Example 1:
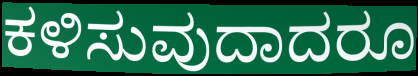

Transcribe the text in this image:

ಕಳಿಸುವುದಾದರೂ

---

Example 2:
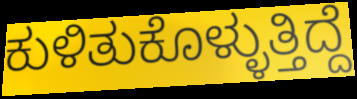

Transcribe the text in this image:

ಕುಳಿತುಕೊಳ್ಳುತ್ತಿದ್ದೆ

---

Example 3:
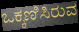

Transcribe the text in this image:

ಒಕ್ಕಣಿಸಿರುವ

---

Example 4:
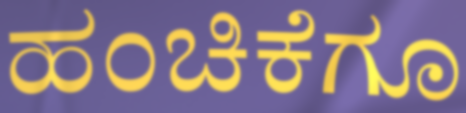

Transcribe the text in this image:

ಹಂಚಿಕೆಗೂ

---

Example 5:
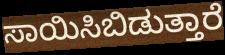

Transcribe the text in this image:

ಸಾಯಿಸಿಬಿಡುತ್ತಾರೆ